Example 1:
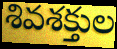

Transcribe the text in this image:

శివశక్తుల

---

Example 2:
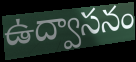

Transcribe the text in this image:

ఉద్వాసనం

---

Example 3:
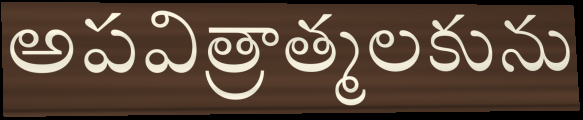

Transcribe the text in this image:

అపవిత్రాత్మలకును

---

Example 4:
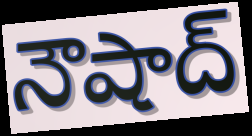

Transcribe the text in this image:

నౌషాద్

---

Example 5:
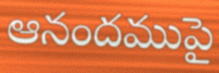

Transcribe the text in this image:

ఆనందముపై